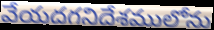
వేయదగనిదేశములోను